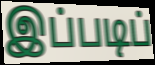
இப்படிப்